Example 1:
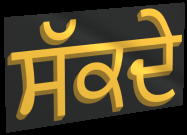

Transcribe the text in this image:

ਸੱਕਦੇ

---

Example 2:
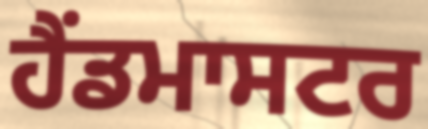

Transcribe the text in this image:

ਹੈਂਡਮਾਸਟਰ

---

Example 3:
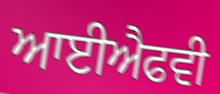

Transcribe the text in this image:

ਆਈਐਫਵੀ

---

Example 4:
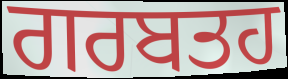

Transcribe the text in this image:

ਗਰਬਤਹ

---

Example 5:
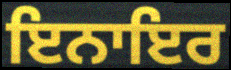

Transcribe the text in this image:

ਇਨਾਇਰ